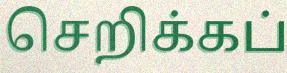
செறிக்கப்